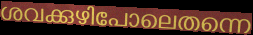
ശവക്കുഴിപോലെതന്നെ